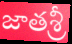
జాతశ్రీ